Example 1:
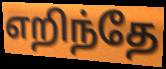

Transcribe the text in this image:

எறிந்தே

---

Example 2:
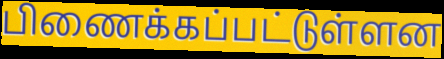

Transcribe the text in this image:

பிணைக்கப்பட்டுள்ளன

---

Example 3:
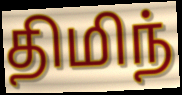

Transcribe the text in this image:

திமிந்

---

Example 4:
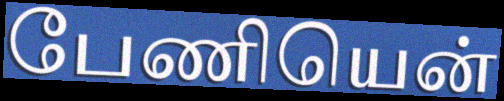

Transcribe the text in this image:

பேணியென்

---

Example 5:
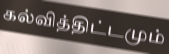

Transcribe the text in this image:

கல்வித்திட்டமும்